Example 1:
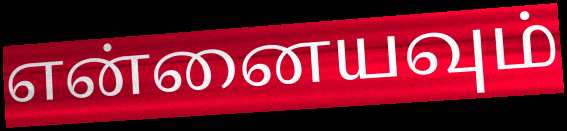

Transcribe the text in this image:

என்னையவும்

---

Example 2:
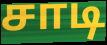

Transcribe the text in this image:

சாடி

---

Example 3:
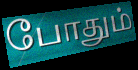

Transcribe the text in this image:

போதும்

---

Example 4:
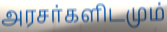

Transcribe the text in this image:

அரசர்களிடமும்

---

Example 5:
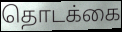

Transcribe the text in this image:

தொடக்கை